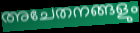
അചേതനങ്ങളും